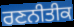
ਰਣਨੀਤੀਕ